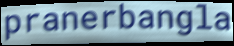
pranerbangla